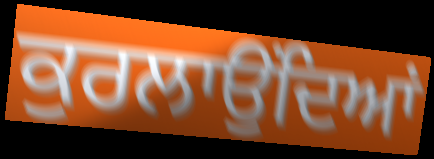
ਕੁਰਲਾਉਂਦਿਆਂ